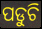
ପଡୁଚି